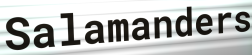
Salamanders